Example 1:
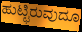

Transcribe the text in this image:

ಹುಟ್ಟಿರುವುದೂ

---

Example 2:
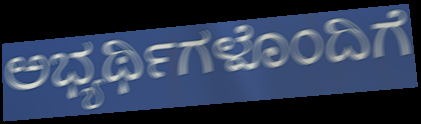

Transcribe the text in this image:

ಅಭ್ಯರ್ಥಿಗಳೊಂದಿಗೆ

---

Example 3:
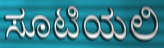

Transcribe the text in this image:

ಸೂಟಿಯಲಿ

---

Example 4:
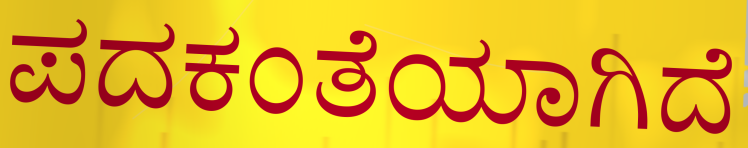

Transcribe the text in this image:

ಪದಕಂತೆಯಾಗಿದೆ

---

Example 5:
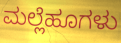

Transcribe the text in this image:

ಮಲ್ಲೆಹೂಗಳು